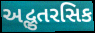
અદ્ભુતરસિક